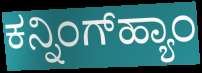
ಕನ್ನಿಂಗ್‌ಹ್ಯಾಂ